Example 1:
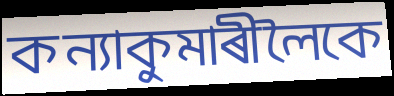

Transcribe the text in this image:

কন্যাকুমাৰীলৈকে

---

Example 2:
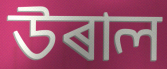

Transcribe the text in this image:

উৰাল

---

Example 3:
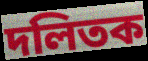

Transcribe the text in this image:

দলিতক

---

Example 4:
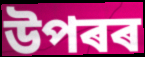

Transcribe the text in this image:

উপৰৰ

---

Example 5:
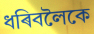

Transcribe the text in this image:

ধৰিবলৈকে